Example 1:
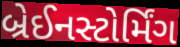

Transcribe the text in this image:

બ્રેઈનસ્ટોર્મિંગ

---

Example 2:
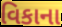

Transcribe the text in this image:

વિકાના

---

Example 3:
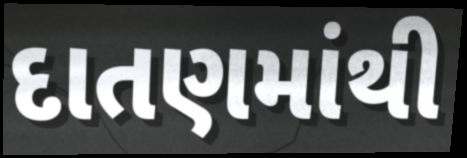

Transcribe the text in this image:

દાતણમાંથી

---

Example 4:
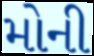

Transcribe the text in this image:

મોની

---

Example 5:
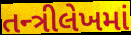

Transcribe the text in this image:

તન્ત્રીલેખમાં